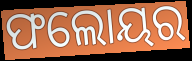
ଫଲୋୟର